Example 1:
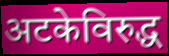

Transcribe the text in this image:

अटकेविरुद्ध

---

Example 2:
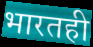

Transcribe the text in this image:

भारतही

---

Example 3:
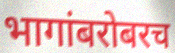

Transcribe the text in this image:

भागांबरोबरच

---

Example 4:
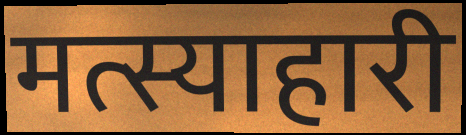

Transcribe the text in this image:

मत्स्याहारी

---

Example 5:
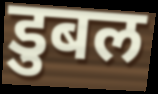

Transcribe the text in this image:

डुबल